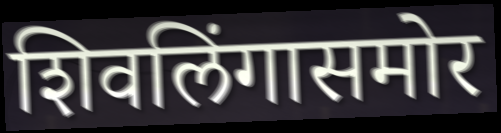
शिवलिंगासमोर